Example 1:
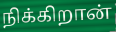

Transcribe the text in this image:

நிக்கிறான்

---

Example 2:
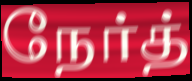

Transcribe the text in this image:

நேர்த்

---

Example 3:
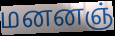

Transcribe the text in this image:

மனனஞ்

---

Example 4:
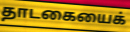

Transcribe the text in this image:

தாடகையைக்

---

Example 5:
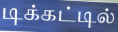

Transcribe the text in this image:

டிக்கட்டில்